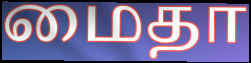
மைதா